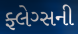
ફ્લેગ્સની